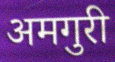
अमगुरी